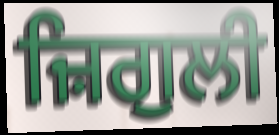
ਜ਼ਿਗੁਲੀ